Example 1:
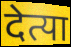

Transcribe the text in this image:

देत्या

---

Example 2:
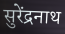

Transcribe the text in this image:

सुरेंद्रनाथ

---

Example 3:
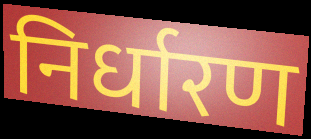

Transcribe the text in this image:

निर्धारण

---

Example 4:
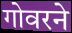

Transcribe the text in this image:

गोवरने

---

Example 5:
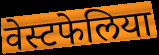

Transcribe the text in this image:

वेस्टफेलिया